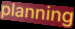
planning